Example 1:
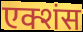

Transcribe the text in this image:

एक्शंस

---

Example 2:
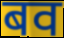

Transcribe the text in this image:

बव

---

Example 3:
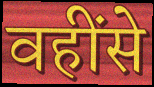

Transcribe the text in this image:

वहींसे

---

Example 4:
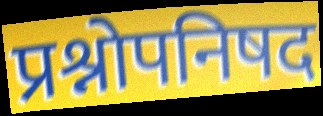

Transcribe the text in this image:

प्रश्नोपनिषद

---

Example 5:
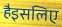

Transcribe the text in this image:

हैइसलिए